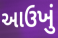
આઉખું